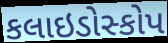
કલાઇડોસ્કોપ